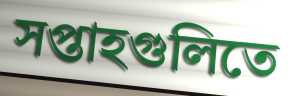
সপ্তাহগুলিতে